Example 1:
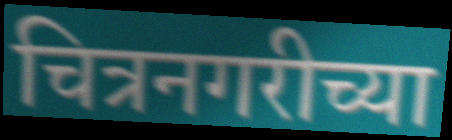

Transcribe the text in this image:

चित्रनगरीच्या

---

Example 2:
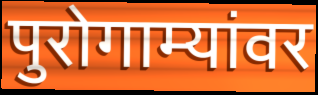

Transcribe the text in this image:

पुरोगाम्यांवर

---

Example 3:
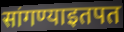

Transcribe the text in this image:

सांगण्याइतपत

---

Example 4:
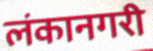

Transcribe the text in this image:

लंकानगरी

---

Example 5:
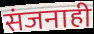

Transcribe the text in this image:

संजनाही